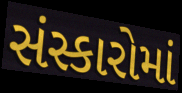
સંસ્કારોમાં